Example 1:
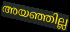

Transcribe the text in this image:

അയഞ്ഞില്ല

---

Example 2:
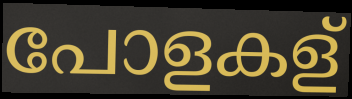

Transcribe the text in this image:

പോളകള്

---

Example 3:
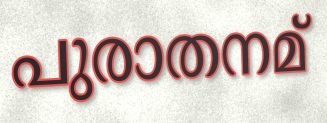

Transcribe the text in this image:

പുരാതനമ്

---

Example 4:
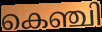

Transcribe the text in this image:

കെഞ്ചി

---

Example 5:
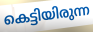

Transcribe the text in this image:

കെട്ടിയിരുന്ന